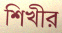
শিখীর